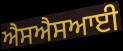
ਐਸਐਸਆਈ